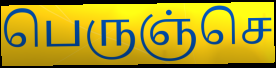
பெருஞ்செ